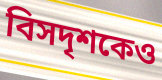
বিসদৃশকেও